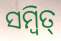
ସମ୍ବିତ୍